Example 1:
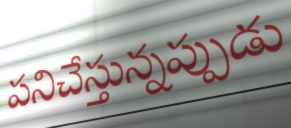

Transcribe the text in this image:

పనిచేస్తున్నప్పుడు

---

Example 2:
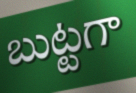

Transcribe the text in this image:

బుట్టగా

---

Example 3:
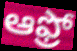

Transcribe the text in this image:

ఆఫ్రో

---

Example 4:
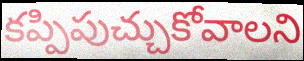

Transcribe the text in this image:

కప్పిపుచ్చుకోవాలని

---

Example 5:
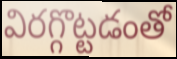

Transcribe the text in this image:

విరగ్గొట్టడంతో